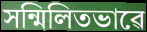
সন্মিলিতভাৱে